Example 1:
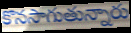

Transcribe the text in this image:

కొనసాగుతున్నారు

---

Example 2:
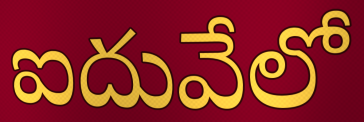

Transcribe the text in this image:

ఐదువేలో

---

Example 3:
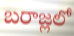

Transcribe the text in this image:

బరాజ్లలో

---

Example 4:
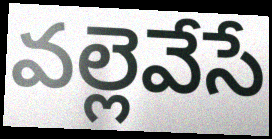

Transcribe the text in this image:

వల్లెవేసే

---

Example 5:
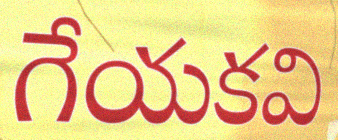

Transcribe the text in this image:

గేయకవి